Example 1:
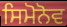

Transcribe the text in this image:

ਸਿਮੋਨੋਵ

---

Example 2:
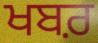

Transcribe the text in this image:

ਖਬ਼ਰ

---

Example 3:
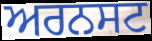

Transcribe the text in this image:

ਅਰਨਸਟ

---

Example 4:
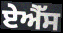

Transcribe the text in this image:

ਏਐੱਸ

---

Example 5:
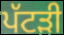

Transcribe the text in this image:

ਪੱਟੜੀ